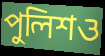
পুলিশও